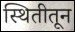
स्थितीतून